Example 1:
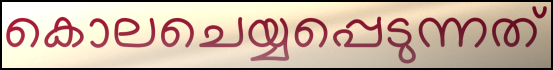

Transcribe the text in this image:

കൊലചെയ്യപ്പെടുന്നത്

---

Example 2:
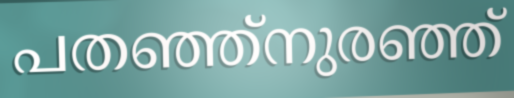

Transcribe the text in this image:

പതഞ്ഞ്നുരഞ്ഞ്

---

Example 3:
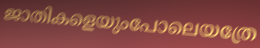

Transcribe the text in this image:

ജാതികളെയുംപോലെയത്രേ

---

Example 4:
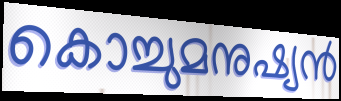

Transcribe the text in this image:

കൊച്ചുമനുഷ്യൻ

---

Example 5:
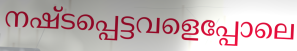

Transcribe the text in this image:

നഷ്ടപ്പെട്ടവളെപ്പോലെ